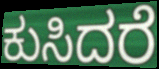
ಕುಸಿದರೆ